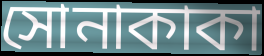
সোনাকাকা